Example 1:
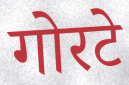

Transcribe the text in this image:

गोरटे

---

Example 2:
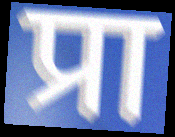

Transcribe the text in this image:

प्रा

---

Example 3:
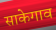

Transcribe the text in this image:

साकेगाव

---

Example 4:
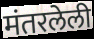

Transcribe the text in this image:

मंतरलेली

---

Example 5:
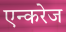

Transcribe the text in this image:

एन्करेज